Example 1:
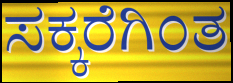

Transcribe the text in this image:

ಸಕ್ಕರೆಗಿಂತ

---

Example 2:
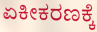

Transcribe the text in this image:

ಏಕೀಕರಣಕ್ಕೆ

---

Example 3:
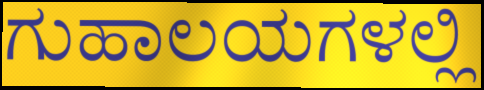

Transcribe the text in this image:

ಗುಹಾಲಯಗಳಲ್ಲಿ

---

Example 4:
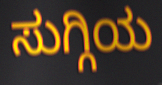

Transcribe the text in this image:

ಸುಗ್ಗಿಯ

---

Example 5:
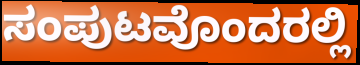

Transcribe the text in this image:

ಸಂಪುಟವೊಂದರಲ್ಲಿ